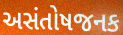
અસંતોષજનક